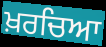
ਖ਼ਰਚਿਆ